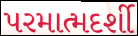
પરમાત્મદર્શી